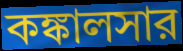
কঙ্কালসার